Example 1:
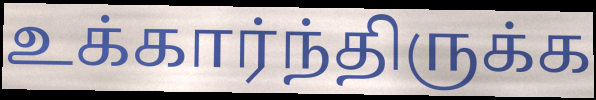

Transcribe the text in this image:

உக்கார்ந்திருக்க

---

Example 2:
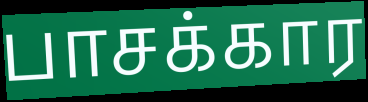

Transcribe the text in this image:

பாசக்கார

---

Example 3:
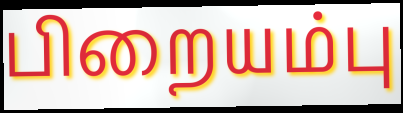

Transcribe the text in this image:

பிறையம்பு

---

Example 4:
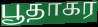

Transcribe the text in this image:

பூதாகர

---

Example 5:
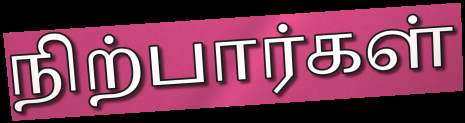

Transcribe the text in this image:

நிற்பார்கள்